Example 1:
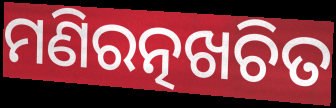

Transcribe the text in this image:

ମଣିରତ୍ନଖଚିତ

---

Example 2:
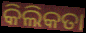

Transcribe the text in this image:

କିଲିକତା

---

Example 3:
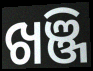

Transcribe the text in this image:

ଖଞ୍ଜି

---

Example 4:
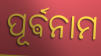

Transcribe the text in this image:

ପୂର୍ଵନାମ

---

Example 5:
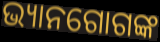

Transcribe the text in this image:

ଭ୍ୟାନଗୋଗଙ୍କ